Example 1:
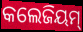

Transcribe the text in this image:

କଲେଜିୟମ୍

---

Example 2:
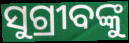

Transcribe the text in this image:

ସୁଗ୍ରୀବଙ୍କୁ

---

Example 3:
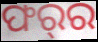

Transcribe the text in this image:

ଫର୍‌ର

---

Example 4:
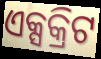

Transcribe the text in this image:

ଏକ୍ସକ୍ରିଟ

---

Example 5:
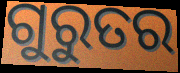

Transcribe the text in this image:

ଗୁରୁତର